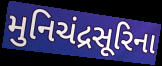
મુનિચંદ્રસૂરિના